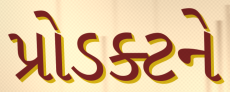
પ્રોડક્ટને